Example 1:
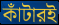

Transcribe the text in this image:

কাঁটারই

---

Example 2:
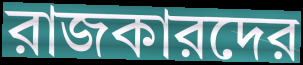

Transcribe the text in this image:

রাজকারদের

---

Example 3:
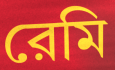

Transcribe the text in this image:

রেমি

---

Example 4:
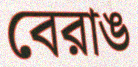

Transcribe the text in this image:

বেরাঙ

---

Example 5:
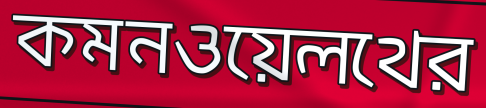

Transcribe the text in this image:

কমনওয়েলথের